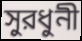
সুরধুনী